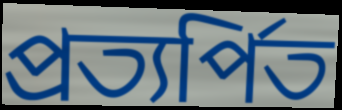
প্রত্যর্পিত